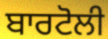
ਬਾਰਟੋਲੀ